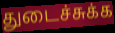
துடைச்சுக்க